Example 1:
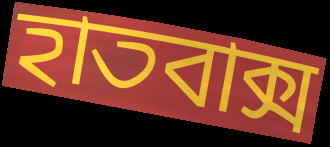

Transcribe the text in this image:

হাতবাক্স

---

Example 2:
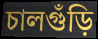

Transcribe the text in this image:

চালগুঁড়ি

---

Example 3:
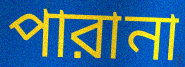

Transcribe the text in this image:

পারানা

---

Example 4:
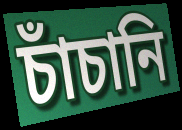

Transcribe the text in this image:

চাঁচানি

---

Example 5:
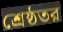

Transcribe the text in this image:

শ্রেষ্ঠতর